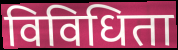
विविधिता